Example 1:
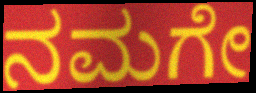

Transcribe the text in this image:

ನಮಗೇ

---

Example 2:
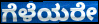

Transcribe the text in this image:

ಗೆಳೆಯರೇ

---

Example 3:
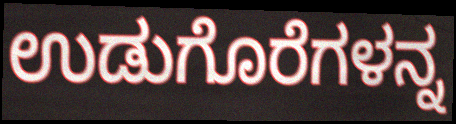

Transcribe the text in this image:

ಉಡುಗೊರೆಗಳನ್ನ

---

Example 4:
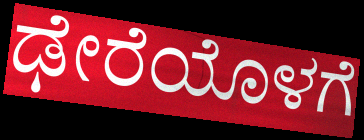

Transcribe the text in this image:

ಢೇರೆಯೊಳಗೆ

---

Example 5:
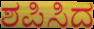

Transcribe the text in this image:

ಶಪಿಸಿದ